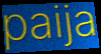
paija